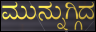
ಮುನ್ನುಗ್ಗಿದ